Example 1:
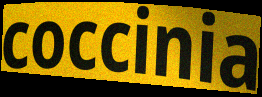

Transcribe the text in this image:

coccinia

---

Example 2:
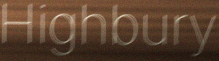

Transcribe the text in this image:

Highbury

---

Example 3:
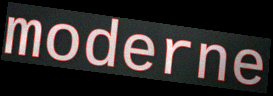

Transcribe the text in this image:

moderne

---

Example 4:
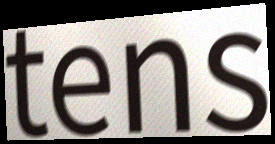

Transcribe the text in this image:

tens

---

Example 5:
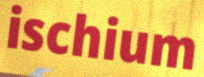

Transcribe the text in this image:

ischium